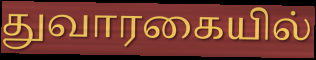
துவாரகையில்